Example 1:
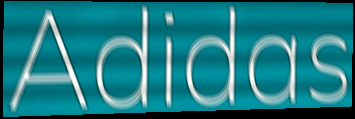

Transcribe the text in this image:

Adidas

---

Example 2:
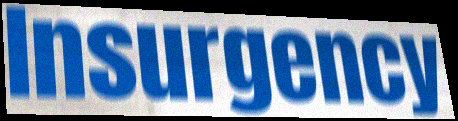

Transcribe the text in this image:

Insurgency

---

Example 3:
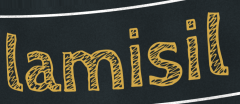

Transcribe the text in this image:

lamisil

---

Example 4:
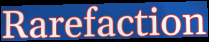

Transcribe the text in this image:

Rarefaction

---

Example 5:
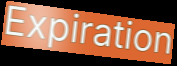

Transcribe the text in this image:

Expiration